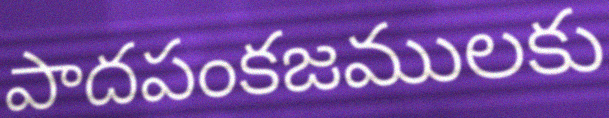
పాదపంకజములకు